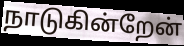
நாடுகின்றேன்